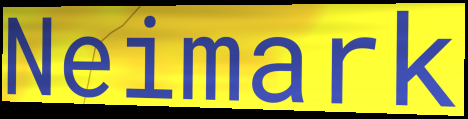
Neimark